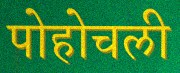
पोहोचली